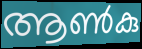
ആൺകു